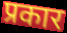
प्रकार